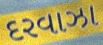
દરવાઝા